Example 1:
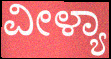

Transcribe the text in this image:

ವೀಳ್ಯಾ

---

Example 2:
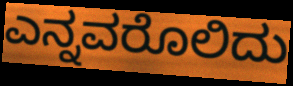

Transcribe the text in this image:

ಎನ್ನವರೊಲಿದು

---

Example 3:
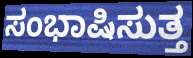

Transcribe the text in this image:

ಸಂಭಾಷಿಸುತ್ತ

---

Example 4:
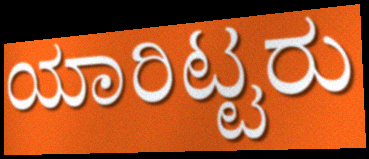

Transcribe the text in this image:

ಯಾರಿಟ್ಟರು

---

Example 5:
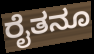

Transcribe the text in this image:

ರೈತನೂ